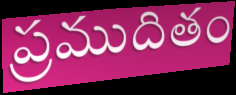
ప్రముదితం